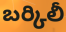
బర్కిలీ